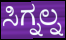
ಸಿಗ್ನಲ್ನ